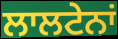
ਲਾਲਟੇਨਾਂ